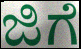
ಜಿಗೆ